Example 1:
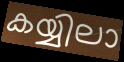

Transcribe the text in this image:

കയ്യിലാ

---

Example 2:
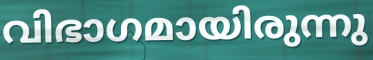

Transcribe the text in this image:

വിഭാഗമായിരുന്നു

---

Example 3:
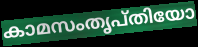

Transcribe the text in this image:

കാമസംതൃപ്തിയോ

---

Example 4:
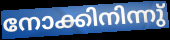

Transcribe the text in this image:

നോക്കിനിന്നു്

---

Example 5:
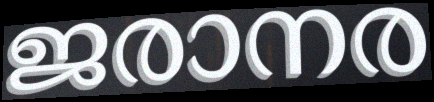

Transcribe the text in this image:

ജരാനര